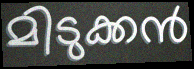
മിടുക്കൻ